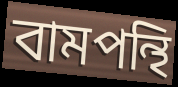
বামপন্থি